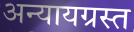
अन्यायग्रस्त